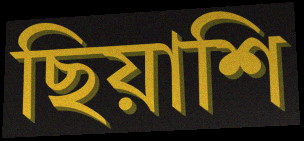
ছিয়াশি